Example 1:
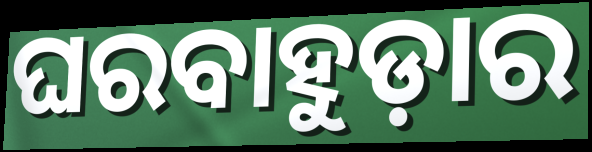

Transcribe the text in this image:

ଘରବାହୁଡ଼ାର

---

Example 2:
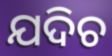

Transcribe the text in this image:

ଯଦିଚ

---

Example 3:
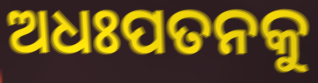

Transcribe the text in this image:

ଅଧଃପତନକୁ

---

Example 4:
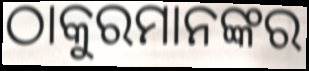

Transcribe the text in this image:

ଠାକୁରମାନଙ୍କର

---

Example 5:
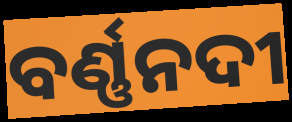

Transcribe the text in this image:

ବର୍ଣ୍ଣନଦୀ